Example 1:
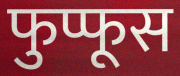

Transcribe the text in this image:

फुप्फूस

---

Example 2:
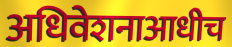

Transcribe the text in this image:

अधिवेशनाआधीच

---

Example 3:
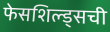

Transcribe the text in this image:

फेसशिल्ड्सची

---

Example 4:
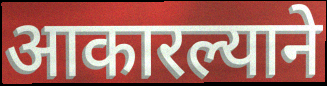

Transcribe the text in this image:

आकारल्याने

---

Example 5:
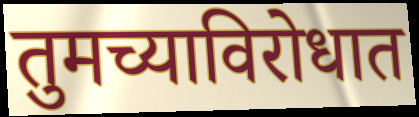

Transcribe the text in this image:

तुमच्याविरोधात